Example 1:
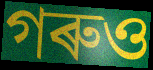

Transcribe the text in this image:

গৰুও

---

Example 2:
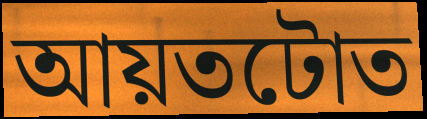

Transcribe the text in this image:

আয়তটোত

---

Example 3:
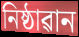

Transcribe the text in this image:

নিষ্ঠাৱান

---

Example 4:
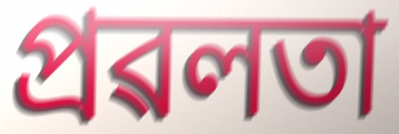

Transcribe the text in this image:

প্ৰৱলতা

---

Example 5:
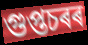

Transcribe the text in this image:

গুপ্তচৰৰ